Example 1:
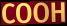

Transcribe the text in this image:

COOH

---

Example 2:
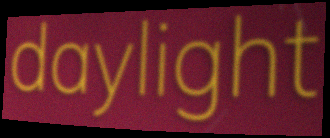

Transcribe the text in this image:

daylight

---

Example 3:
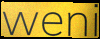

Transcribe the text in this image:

weni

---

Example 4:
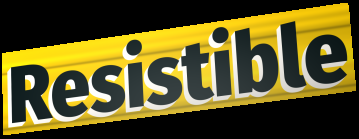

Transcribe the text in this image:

Resistible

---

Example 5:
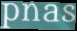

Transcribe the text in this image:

pnas